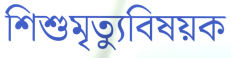
শিশুমৃত্যুবিষয়ক